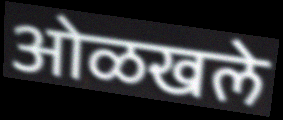
ओळखले